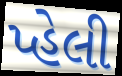
પ્હેલી